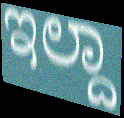
ಇಲ್ದಾ